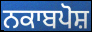
ਨਕਾਬਪੋਸ਼